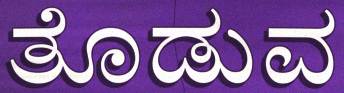
ತೊಡುವ